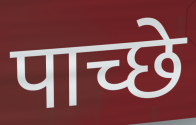
पाच्छे